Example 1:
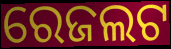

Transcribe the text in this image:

ରେଜଲଟ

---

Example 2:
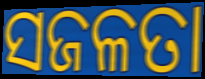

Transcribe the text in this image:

ସଜଳତା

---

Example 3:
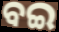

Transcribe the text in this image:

ବଇ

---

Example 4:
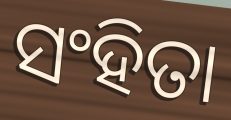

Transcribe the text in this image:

ସଂହିତା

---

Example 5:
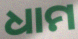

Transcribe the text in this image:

ଧାମ